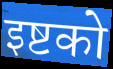
इष्टको